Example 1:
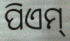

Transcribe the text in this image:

ପିଏମ୍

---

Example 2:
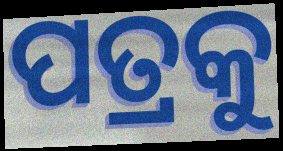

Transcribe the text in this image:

ପତ୍ରକୁ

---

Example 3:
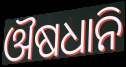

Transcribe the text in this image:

ଔଷଧାନି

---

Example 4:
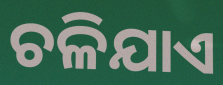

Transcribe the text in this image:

ଚଳିଯାଏ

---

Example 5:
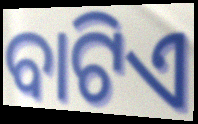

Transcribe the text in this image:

ବାଟିଏ